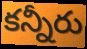
కన్నీరు